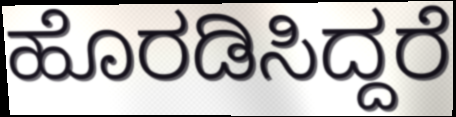
ಹೊರಡಿಸಿದ್ದರೆ